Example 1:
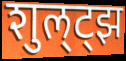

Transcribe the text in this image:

शुल्ट्झ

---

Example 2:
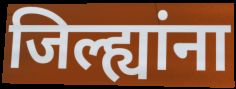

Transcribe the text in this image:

जिल्ह्यांना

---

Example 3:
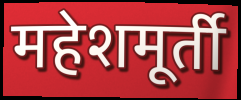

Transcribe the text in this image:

महेशमूर्ती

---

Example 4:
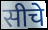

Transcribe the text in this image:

सीचे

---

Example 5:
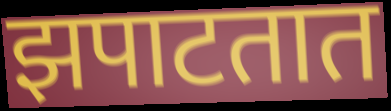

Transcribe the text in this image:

झपाटतात